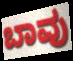
ಬಾವು